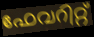
ഫേവറിറ്റ്